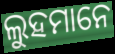
ଲୁହମାନେ